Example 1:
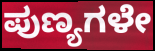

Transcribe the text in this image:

ಪುಣ್ಯಗಳೇ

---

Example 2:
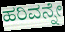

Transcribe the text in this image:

ಹರಿವನ್ನೇ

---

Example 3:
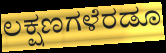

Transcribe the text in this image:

ಲಕ್ಷಣಗಳೆರಡೂ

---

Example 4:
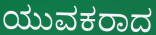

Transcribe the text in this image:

ಯುವಕರಾದ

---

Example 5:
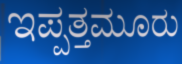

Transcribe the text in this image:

ಇಪ್ಪತ್ತಮೂರು